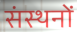
संस्थनों